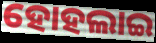
ହୋହଲାଇ